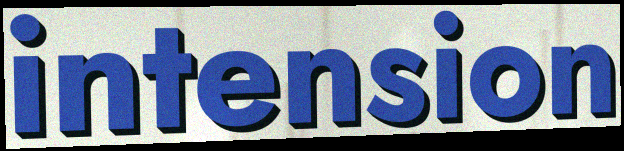
intension